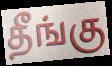
தீங்கு